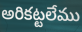
అరికట్టలేము